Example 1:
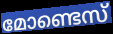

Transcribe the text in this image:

മോണ്ടെസ്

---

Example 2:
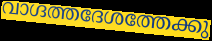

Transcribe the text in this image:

വാഗ്ദത്തദേശത്തേക്കു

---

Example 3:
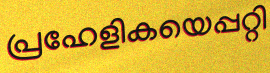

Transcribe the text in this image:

പ്രഹേളികയെപ്പറ്റി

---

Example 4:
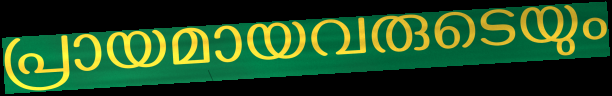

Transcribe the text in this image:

പ്രായമായവരുടെയും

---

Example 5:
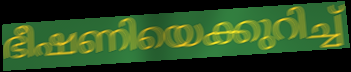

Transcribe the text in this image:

ഭീഷണിയെക്കുറിച്ച്